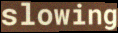
slowing